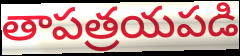
తాపత్రయపడి